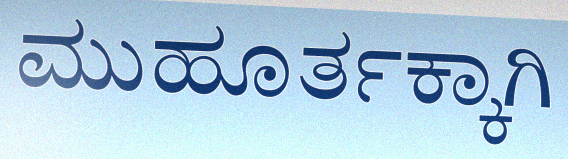
ಮುಹೂರ್ತಕ್ಕಾಗಿ